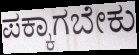
ಪಕ್ಕಾಗಬೇಕು